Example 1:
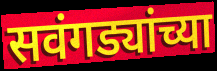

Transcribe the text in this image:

सवंगड्यांच्या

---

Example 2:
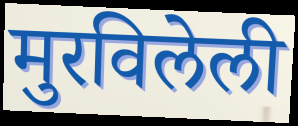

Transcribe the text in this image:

मुरविलेली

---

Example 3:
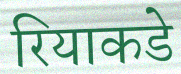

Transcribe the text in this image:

रियाकडे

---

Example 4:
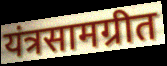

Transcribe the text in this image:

यंत्रसामग्रीत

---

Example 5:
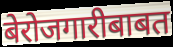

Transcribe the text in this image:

बेरोजगारीबाबत